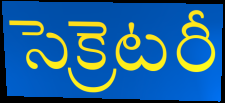
సెక్రెటరీ